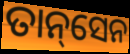
ତାନ୍‌ସେନ